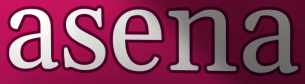
asena